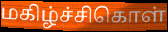
மகிழ்ச்சிகொள்